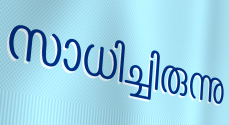
സാധിച്ചിരുന്നു